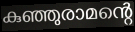
കുഞ്ഞുരാമന്റെ